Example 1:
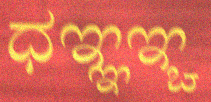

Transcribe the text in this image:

ಧಞ್ಞಞ್ಚ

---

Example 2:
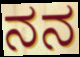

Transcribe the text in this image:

ನನ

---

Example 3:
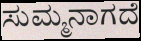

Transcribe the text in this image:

ಸುಮ್ಮನಾಗದೆ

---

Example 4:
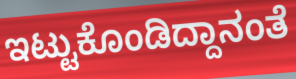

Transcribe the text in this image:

ಇಟ್ಟುಕೊಂಡಿದ್ದಾನಂತೆ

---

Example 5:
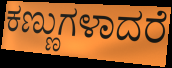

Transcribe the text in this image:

ಕಣ್ಣುಗಳಾದರೆ